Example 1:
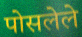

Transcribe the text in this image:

पोसलेले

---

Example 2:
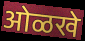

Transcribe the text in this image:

ओळखे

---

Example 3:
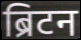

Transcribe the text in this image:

ब्रिटन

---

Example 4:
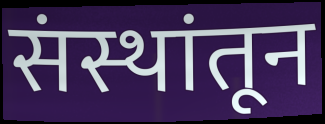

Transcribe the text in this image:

संस्थांतून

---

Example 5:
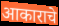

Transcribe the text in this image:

आकाराचे